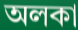
অলকা